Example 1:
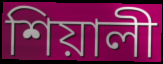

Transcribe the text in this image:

শিয়ালী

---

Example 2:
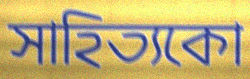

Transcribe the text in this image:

সাহিত্যকো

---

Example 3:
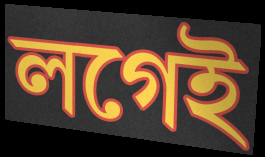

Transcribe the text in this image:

লগেই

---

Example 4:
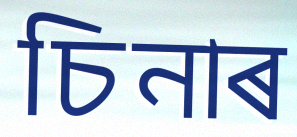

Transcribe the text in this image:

চিনাৰ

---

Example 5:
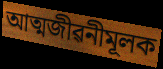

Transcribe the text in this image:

আত্মজীৱনীমূলক